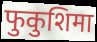
फुकुशिमा